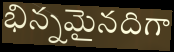
భిన్నమైనదిగా